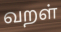
வறள்